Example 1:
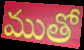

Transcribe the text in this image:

ముతో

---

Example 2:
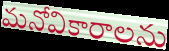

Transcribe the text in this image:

మనోవికారాలను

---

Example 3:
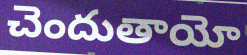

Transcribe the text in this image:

చెందుతాయో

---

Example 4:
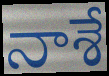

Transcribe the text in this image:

నాశే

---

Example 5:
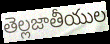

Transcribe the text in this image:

తెల్లజాతీయుల